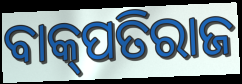
ବାକ୍‌ପତିରାଜ